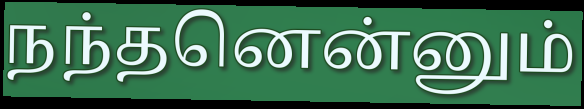
நந்தனென்னும்